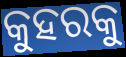
କୁହରକୁ